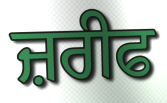
ਜ਼ਰੀਫ